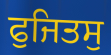
ਫੁਜਿਤਸੁ